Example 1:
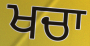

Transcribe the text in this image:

ਖਚਾ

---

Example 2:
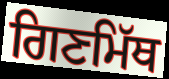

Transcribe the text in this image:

ਗਿਣਮਿੱਥ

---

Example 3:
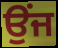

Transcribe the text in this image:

ਉੰਜ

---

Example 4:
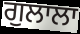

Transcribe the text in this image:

ਗੁਲਾਲਾ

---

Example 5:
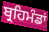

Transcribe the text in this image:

ਬ੍ਰਹਿਮੰਡਾਂ